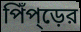
পিঁপ্ড়ের